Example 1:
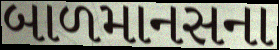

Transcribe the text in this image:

બાળમાનસના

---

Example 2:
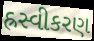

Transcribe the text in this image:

હ્રસ્વીકરણ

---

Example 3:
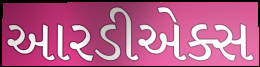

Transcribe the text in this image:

આરડીએક્સ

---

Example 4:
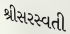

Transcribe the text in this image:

શ્રીસરસ્વતી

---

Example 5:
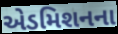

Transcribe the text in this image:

એડમિશનના